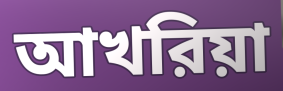
আখরিয়া